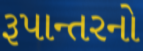
રૂપાન્તરનો